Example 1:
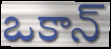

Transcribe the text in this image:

ఒకాన్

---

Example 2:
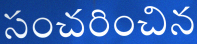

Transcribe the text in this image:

సంచరించిన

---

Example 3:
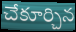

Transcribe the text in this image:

చేకూర్చిన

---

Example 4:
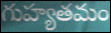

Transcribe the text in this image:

గుహ్యతమం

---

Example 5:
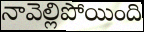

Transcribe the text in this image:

నావెల్లిపోయింది